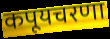
कपूयचरणा